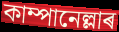
কাম্পানেল্লাৰ